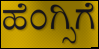
ಹೆಂಗ್ಸಿಗೆ